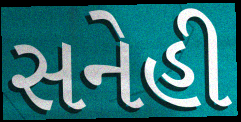
સનેહી